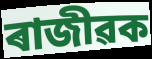
ৰাজীৱক